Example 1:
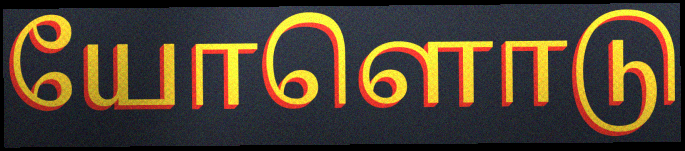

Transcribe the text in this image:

யோளொடு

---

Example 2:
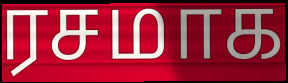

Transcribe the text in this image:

ரசமாக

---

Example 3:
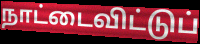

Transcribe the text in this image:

நாட்டைவிட்டுப்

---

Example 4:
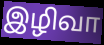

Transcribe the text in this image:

இழிவா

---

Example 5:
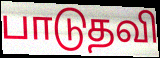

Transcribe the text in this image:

பாடுதவி